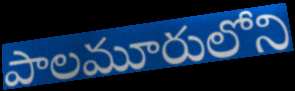
పాలమూరులోని